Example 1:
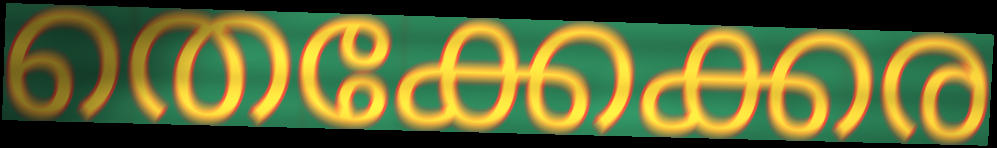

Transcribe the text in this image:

തെക്കേക്കര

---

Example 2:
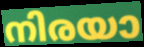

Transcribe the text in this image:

നിരയാ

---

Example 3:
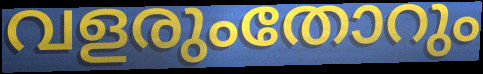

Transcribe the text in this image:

വളരുംതോറും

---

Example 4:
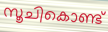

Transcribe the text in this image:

സൂചികൊണ്ട്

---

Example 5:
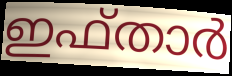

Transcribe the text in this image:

ഇഫ്താർ